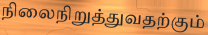
நிலைநிறுத்துவதற்கும்